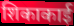
शिकाकाई